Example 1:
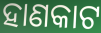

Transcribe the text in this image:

ହାଣକାଟ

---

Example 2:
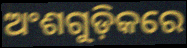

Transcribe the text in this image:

ଅଂଶଗୁଡ଼ିକରେ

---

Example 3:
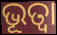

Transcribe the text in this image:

ଭୂତ୍ୱା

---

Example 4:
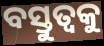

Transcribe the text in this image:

ବସ୍ତୁତ୍ଵକୁ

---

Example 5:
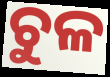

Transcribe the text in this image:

ଚୁଳ